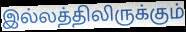
இல்லத்திலிருக்கும்